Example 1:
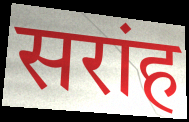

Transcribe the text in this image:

सरांह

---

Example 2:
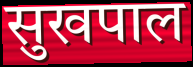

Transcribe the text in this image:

सुखपाल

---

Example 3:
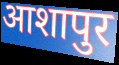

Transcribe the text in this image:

आशापुर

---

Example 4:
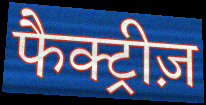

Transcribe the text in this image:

फैक्ट्रीज़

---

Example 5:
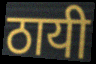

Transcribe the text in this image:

ठायी